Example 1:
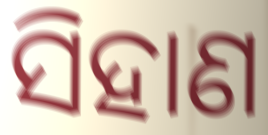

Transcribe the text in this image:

ସିହାଣ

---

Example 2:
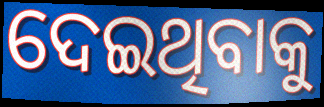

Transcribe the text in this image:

ଦେଇଥିବାକୁ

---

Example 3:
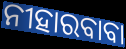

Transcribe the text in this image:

ନୀହାରବାବା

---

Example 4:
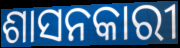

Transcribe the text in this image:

ଶାସନକାରୀ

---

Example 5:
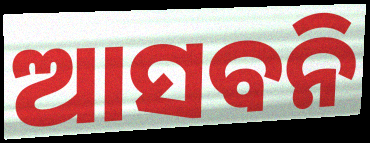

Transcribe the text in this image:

ଆସବନି